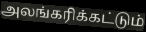
அலங்கரிக்கட்டும்